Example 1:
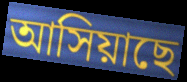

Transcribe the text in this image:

আসিয়াছে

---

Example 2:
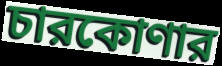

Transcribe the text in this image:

চারকোণার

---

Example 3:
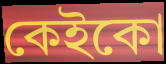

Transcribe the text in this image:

কেইকো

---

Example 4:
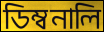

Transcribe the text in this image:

ডিম্বনালি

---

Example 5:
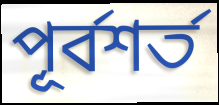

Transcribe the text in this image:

পূর্বশর্ত